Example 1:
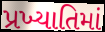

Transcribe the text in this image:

પ્રખ્યાતિમાં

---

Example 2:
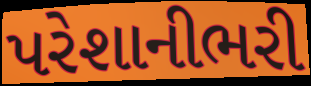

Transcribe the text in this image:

પરેશાનીભરી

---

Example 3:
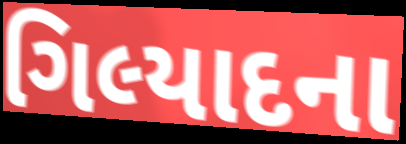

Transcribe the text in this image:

ગિલ્યાદના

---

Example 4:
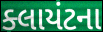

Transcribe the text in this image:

ક્લાયંટના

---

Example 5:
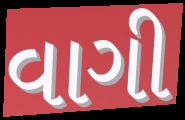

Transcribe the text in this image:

વાગી